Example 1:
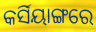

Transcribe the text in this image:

କର୍ସିୟାଙ୍ଗରେ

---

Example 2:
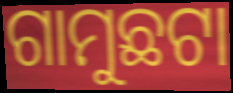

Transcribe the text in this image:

ଗାମୁଛଟା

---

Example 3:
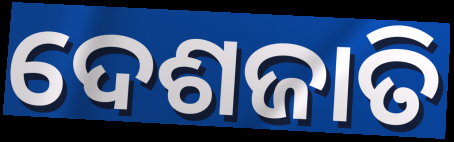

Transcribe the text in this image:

ଦେଶଜାତି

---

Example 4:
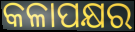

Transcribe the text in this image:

କଳାପକ୍ଷର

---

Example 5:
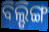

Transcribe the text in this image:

ବିଲ୍ଡିଙ୍ଗ